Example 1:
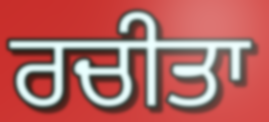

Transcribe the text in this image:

ਰਚੀਤਾ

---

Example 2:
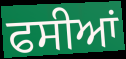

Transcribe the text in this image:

ਫਸੀਆਂ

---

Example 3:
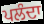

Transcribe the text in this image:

ਪਲੰਦਾ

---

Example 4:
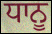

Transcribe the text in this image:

ਧਾਨੂ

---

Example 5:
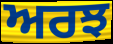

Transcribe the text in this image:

ਅਰਝ